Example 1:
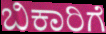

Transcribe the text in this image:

ಬಿಕಾರಿಗೆ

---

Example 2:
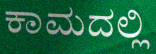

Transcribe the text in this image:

ಕಾಮದಲ್ಲಿ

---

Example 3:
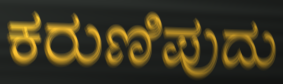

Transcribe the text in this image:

ಕರುಣಿಪುದು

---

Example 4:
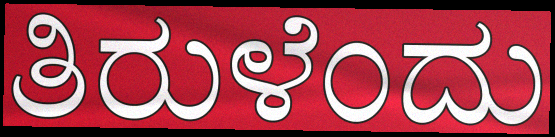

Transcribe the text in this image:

ತಿರುಳೆಂದು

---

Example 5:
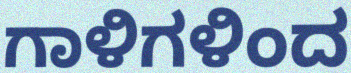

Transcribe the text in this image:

ಗಾಳಿಗಳಿಂದ